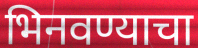
भिनवण्याचा